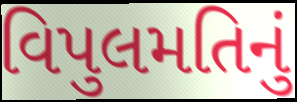
વિપુલમતિનું